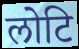
लोटि